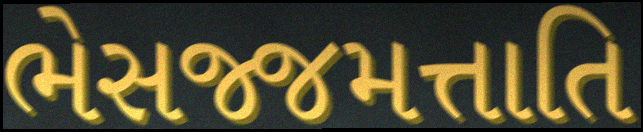
ભેસજ્જમત્તાતિ